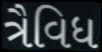
ત્રૈવિધ